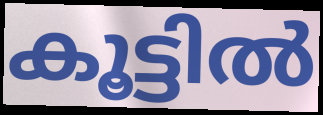
കൂട്ടിൽ